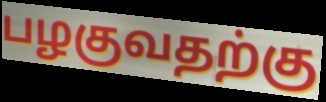
பழகுவதற்கு